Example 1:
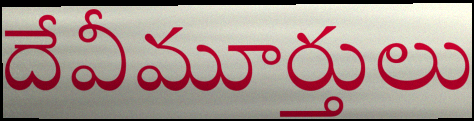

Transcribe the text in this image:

దేవీమూర్తులు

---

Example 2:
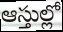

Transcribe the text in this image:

ఆస్తుల్లో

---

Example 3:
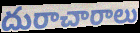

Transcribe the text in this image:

దురాచారాలు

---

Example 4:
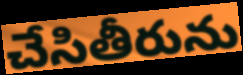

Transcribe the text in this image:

చేసితీరును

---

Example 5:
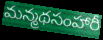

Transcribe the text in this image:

మన్మథసంహారీ